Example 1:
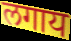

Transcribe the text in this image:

लगाय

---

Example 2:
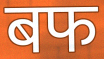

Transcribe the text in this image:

बफ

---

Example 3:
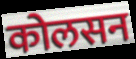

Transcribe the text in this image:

कोलसन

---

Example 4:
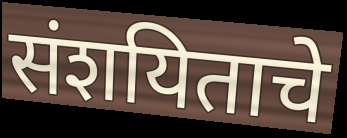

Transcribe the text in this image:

संशयिताचे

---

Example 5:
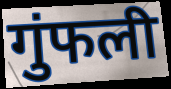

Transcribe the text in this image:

गुंफली